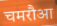
चमरौआ